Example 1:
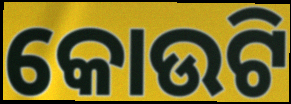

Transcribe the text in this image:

କୋଉଟି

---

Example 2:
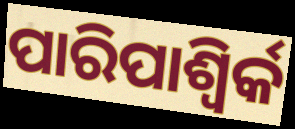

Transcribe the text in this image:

ପାରିପାଶ୍ୱିର୍କ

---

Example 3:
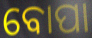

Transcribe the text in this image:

ବୋପା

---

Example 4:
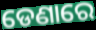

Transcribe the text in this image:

ଡେଣାରେ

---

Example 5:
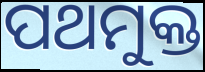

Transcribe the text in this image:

ପଥମୁକ୍ତ